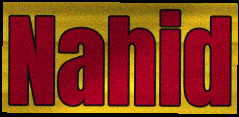
Nahid